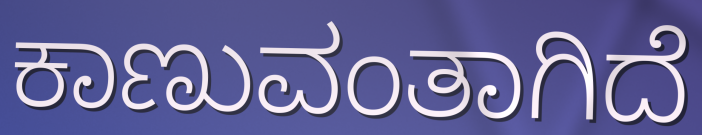
ಕಾಣುವಂತಾಗಿದೆ